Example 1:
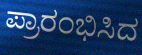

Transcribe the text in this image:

ಪ್ರಾರಂಭಿಸಿದ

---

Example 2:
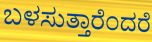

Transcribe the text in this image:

ಬಳಸುತ್ತಾರೆಂದರೆ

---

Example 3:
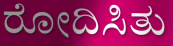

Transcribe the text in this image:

ರೋದಿಸಿತು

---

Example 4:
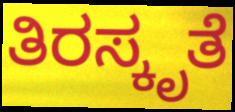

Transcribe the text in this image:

ತಿರಸ್ಕೃತೆ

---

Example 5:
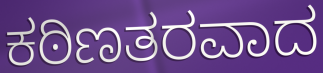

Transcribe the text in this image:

ಕಠಿಣತರವಾದ